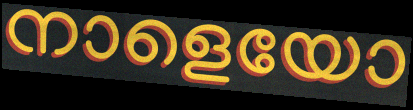
നാളെയോ